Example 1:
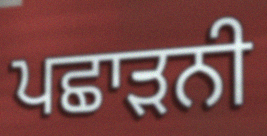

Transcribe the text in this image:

ਪਛਾੜਨੀ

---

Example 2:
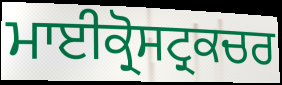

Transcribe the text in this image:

ਮਾਈਕ੍ਰੋਸਟ੍ਰਕਚਰ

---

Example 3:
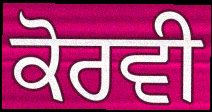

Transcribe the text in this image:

ਕੋਰਵੀ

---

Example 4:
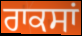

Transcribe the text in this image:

ਰਾਕਸਾਂ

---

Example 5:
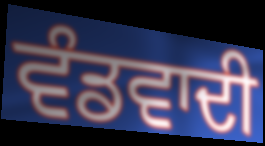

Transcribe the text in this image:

ਵੰਡਵਾਦੀ